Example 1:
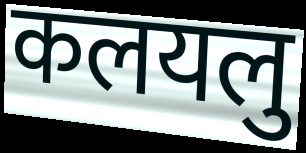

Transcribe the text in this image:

कलयलु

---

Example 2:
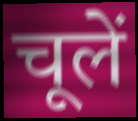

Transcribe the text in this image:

चूलें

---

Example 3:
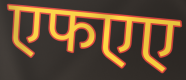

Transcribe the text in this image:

एफएए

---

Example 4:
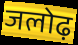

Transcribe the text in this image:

जलोढ़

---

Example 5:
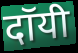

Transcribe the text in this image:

दॉयी